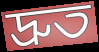
দ্ৰুত